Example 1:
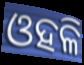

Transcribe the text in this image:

ଓହଳି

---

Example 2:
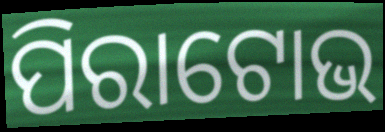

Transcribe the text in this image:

ପିରାଟୋଭ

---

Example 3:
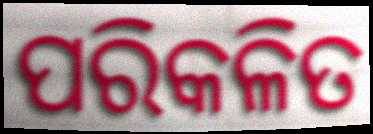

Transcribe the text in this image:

ପରିକଳିତ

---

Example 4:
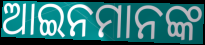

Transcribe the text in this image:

ଆଇନମାନଙ୍କ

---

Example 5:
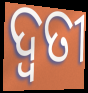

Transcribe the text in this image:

ଦ୍ଵତୀ